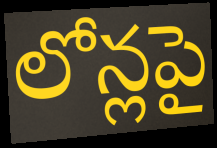
లోన్లపై